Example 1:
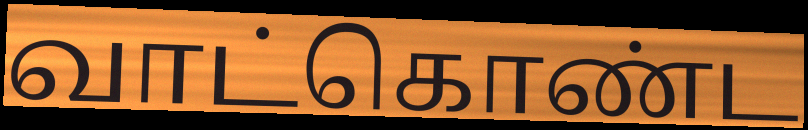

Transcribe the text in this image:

வாட்கொண்ட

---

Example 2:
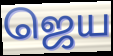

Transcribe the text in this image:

ஜெய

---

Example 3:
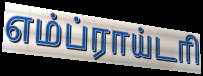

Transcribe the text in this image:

எம்ப்ராய்டரி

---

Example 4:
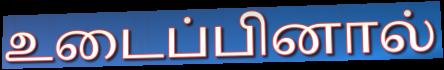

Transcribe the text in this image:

உடைப்பினால்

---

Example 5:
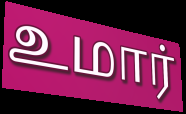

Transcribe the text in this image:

உமார்